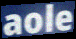
aole